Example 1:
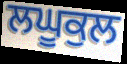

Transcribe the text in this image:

ਲਘੂਕੁਲ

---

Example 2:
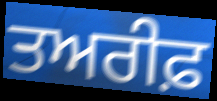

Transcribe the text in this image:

ਤਅਰੀਫ਼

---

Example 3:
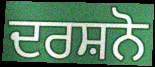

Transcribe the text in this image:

ਦਰਸ਼ਨੋ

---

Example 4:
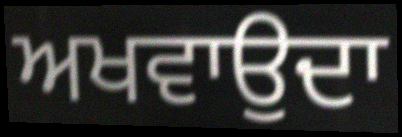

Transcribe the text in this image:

ਅਖਵਾਉਦਾ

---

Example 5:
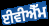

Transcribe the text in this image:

ਈਵੀਐੱਮ